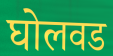
घोलवड